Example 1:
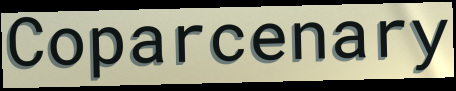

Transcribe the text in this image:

Coparcenary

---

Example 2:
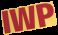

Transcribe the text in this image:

IWP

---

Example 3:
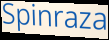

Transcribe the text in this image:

Spinraza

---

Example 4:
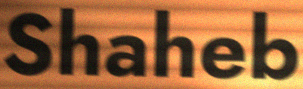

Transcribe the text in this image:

Shaheb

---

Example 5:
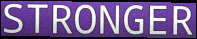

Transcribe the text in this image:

STRONGER